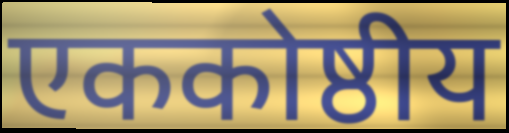
एककोष्ठीय